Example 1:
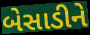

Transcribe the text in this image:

બેસાડીને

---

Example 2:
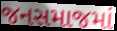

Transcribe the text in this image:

જનસમાજમાં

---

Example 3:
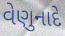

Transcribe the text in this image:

વેણુનાદે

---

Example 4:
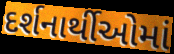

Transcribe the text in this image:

દર્શનાર્થીઓમાં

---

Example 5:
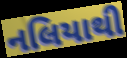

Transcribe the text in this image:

નલિયાથી